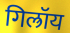
गिल्रॉय